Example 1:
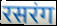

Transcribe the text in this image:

रसरंग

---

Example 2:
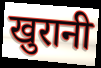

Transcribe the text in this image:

खुरानी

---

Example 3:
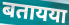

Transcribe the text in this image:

बतायया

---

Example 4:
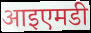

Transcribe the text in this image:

आइएमडी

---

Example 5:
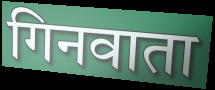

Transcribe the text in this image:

गिनवाता